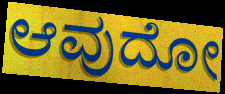
ಆವುದೋ